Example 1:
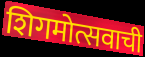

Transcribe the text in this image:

शिगमोत्सवाची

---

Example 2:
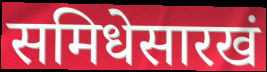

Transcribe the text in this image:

समिधेसारखं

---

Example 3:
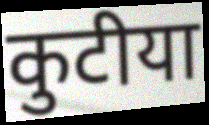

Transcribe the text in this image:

कुटीया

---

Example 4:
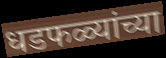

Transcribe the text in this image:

धडफळ्यांच्या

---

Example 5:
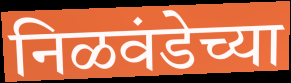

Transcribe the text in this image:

निळवंडेच्या